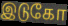
இடுகோ